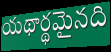
యథార్థమైనది